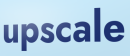
upscale